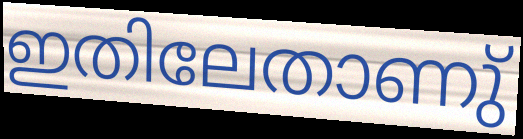
ഇതിലേതാണു്